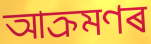
আক্ৰমণৰ